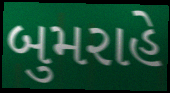
બુમરાહે